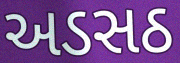
અડસઠ